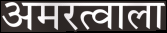
अमरत्वाला